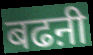
बढऩी